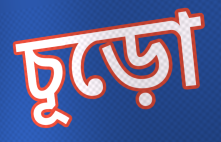
চূড়ো